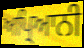
ਅਪ੍ਰਿਆਨੀ